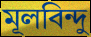
মূলবিন্দু